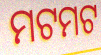
ମଟମଟ